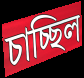
চাচ্ছিল